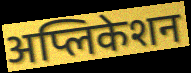
अप्लिकेशन